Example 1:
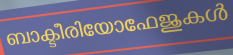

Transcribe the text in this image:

ബാക്ടീരിയോഫേജുകൾ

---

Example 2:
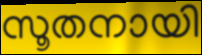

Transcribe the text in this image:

സൂതനായി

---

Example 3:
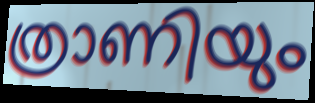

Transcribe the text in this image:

ത്രാണിയും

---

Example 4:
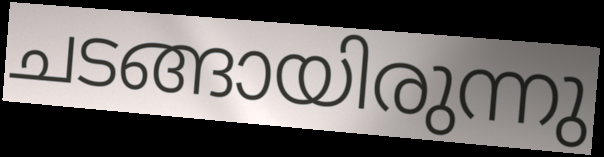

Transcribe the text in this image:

ചടങ്ങായിരുന്നു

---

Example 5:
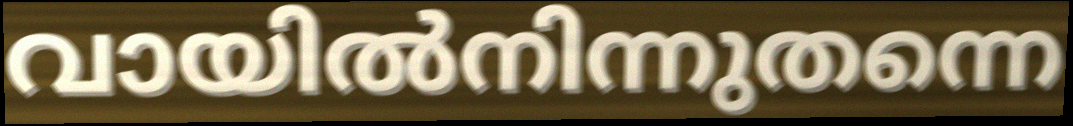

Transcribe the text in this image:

വായിൽനിന്നുതന്നെ